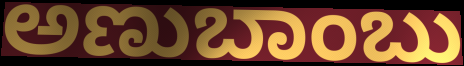
ಅಣುಬಾಂಬು